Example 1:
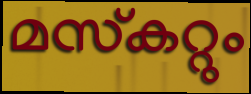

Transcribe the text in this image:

മസ്‌കറ്റും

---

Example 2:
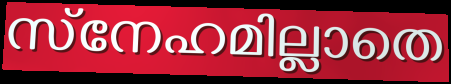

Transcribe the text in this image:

സ്‌നേഹമില്ലാതെ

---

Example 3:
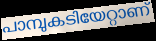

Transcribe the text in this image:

പാമ്പുകടിയേറ്റാണ്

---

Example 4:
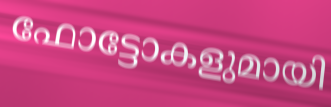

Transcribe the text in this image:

ഫോട്ടോകളുമായി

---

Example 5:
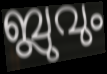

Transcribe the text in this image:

ബ്ലുവും